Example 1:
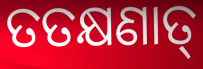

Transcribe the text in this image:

ତତକ୍ଷଣାତ୍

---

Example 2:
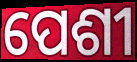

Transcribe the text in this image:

ପେଶୀ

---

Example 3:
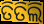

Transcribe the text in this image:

ତିତିଲି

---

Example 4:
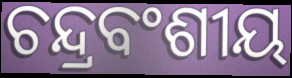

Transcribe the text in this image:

ଚନ୍ଦ୍ରବଂଶୀୟ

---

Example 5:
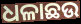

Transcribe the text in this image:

ଧଳାଛଉ